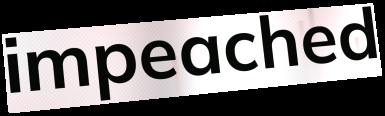
impeached